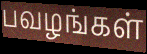
பவழங்கள்